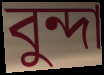
বুন্দা